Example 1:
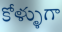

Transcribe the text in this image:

కోళ్ళుగా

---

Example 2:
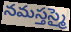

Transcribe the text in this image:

నమస్తస్మై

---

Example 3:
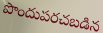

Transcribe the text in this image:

పొందుపరచబడిన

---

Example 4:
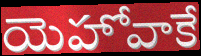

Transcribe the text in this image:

యెహోవాకే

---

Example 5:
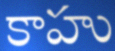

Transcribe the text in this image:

కాహు